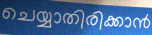
ചെയ്യാതിരിക്കാൻ